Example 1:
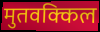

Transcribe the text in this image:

मुतवक्किल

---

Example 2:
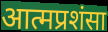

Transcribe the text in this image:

आत्मप्रशंसा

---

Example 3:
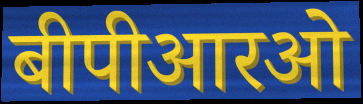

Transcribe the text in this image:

बीपीआरओ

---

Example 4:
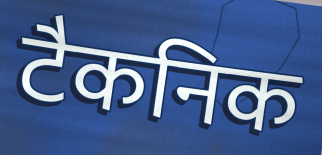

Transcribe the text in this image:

टैकनिक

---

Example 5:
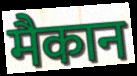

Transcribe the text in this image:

मैकान